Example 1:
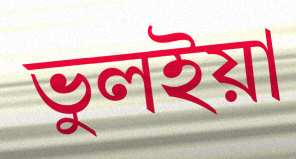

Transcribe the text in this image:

ভুলইয়া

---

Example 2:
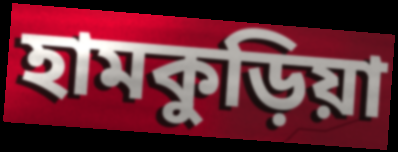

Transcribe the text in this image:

হামকুড়িয়া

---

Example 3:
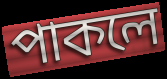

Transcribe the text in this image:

পাকলে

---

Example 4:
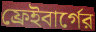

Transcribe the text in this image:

ফ্রেইবার্গের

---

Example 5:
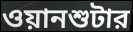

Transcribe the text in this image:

ওয়ানশুটার